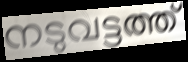
നടുവട്ടത്ത്